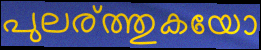
പുലര്ത്തുകയോ